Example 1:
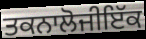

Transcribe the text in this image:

ਤਕਨਾਲੋਜੀਇੱਕ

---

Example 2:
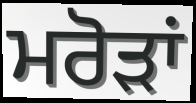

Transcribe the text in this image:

ਮਰੋੜਾਂ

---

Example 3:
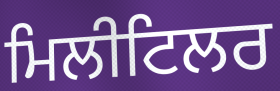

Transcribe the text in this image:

ਮਿਲੀਟਿਲਰ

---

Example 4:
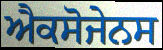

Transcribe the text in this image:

ਐਕਸੋਜੇਨਸ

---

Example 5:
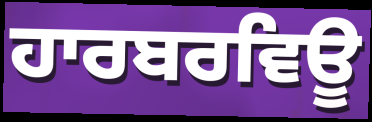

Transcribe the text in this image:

ਹਾਰਬਰਵਿਊ